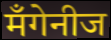
मँगेनीज